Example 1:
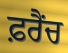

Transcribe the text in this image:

ਫ਼ਰੈਂਚ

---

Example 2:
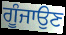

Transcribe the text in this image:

ਗੂੰਜਾਉਣ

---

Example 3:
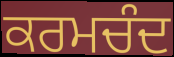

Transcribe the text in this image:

ਕਰਮਚੰਦ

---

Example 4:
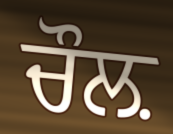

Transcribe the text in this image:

ਚੌਲ਼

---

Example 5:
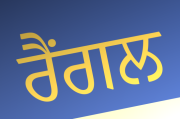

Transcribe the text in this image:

ਰੈਂਗਲ